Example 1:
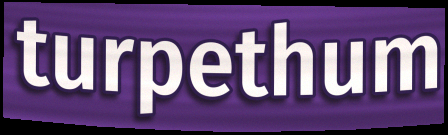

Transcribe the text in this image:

turpethum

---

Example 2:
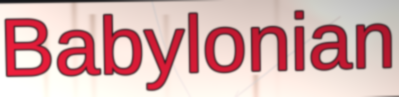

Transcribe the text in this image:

Babylonian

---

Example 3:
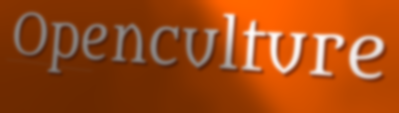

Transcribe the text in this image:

Openculture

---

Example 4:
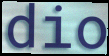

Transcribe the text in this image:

dio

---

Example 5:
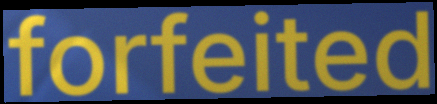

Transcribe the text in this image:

forfeited